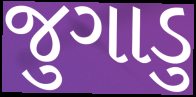
જુગાડુ